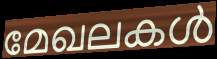
മേഖലകൾ